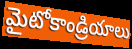
మైటోకాండ్రియాలు